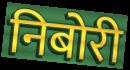
निबोरी